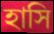
হাসি